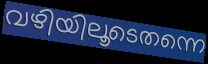
വഴിയിലൂടെതന്നെ